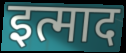
इत्माद